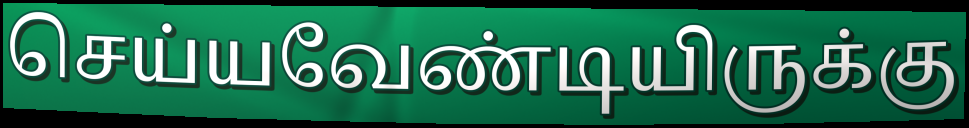
செய்யவேண்டியிருக்கு